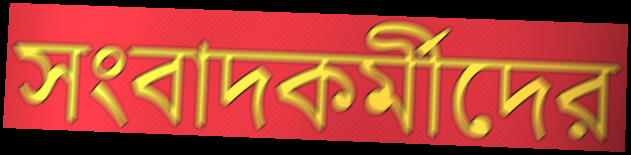
সংবাদকর্মীদের